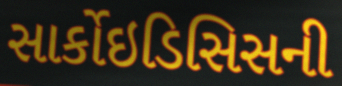
સાર્કોઇડિસિસની